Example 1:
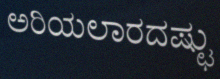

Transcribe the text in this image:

ಅರಿಯಲಾರದಷ್ಟು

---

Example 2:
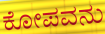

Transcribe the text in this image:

ಕೋಪವನು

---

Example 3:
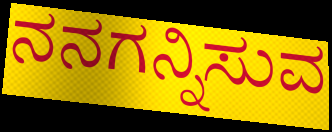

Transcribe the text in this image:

ನನಗನ್ನಿಸುವ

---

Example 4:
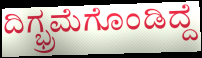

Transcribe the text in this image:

ದಿಗ್ಭ್ರಮೆಗೊಂಡಿದ್ದೆ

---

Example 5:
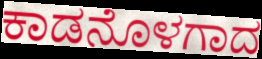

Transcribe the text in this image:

ಕಾಡನೊಳಗಾದ